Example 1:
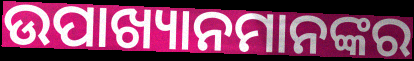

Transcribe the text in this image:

ଉପାଖ୍ୟାନମାନଙ୍କର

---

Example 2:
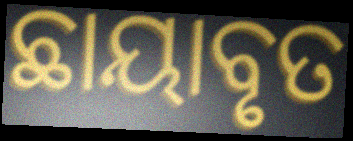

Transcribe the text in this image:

ଛାୟାବୃତ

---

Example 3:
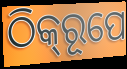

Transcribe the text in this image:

ଠିକ୍‌ରୂପେ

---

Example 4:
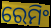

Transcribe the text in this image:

ରେମିଂ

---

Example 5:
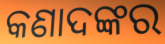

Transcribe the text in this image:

କଣାଦଙ୍କର